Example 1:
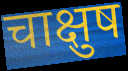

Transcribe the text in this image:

चाक्षुष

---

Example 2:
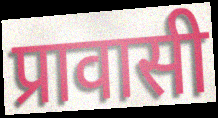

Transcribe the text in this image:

प्रावासी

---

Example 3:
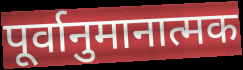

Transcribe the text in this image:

पूर्वानुमानात्मक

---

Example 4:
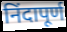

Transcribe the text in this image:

निंदापूर्ण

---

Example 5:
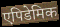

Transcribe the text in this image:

एपिडेमिक